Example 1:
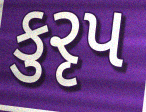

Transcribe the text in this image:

કુરૃપ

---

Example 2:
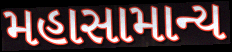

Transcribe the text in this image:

મહાસામાન્ય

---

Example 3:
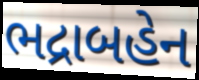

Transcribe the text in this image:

ભદ્રાબહેન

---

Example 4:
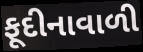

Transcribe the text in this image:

ફૂદીનાવાળી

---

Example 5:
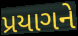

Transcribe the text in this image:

પ્રયાગને